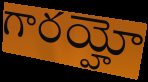
గారయ్హో